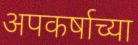
अपकर्षाच्या